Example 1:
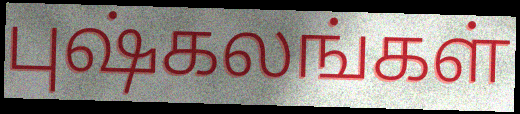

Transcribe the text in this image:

புஷ்கலங்கள்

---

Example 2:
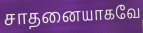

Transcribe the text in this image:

சாதனையாகவே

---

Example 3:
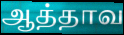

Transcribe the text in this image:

ஆத்தாவ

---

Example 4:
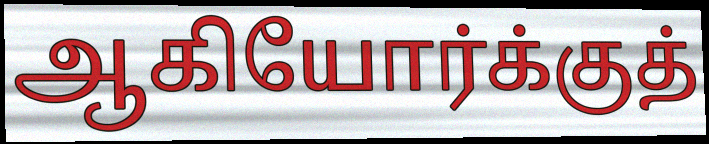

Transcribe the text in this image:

ஆகியோர்க்குத்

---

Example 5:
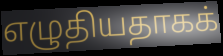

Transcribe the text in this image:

எழுதியதாகக்